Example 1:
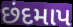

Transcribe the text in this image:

છંદમાપ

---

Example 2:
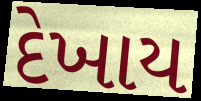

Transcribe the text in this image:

દેખાય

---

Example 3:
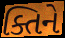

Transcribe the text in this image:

ક્તિને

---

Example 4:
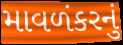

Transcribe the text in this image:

માવળંકરનું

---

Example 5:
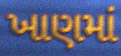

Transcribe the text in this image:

ખાણમાં